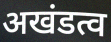
अखंडत्व